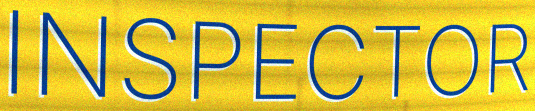
INSPECTOR